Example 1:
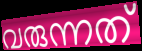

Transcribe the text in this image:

വരുന്നത്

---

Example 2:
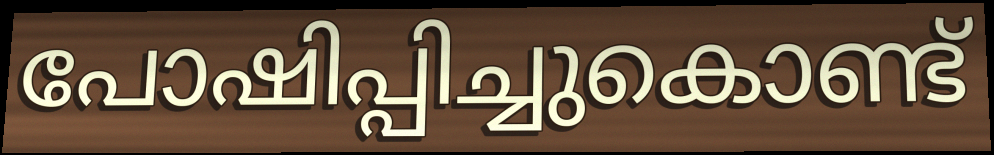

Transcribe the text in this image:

പോഷിപ്പിച്ചുകൊണ്ട്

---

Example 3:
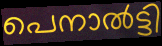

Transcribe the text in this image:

പെനാൽട്ടി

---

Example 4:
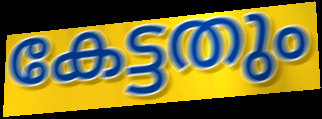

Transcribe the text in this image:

കേട്ടതും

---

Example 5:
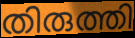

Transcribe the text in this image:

തിരുത്തി